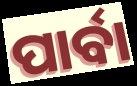
ପାର୍ବା